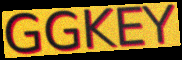
GGKEY